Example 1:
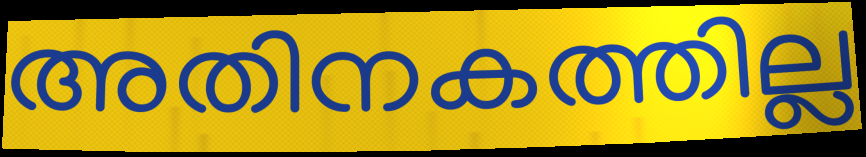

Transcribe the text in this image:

അതിനകത്തില്ല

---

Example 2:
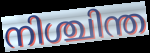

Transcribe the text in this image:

നിശ്ചിന്ത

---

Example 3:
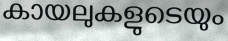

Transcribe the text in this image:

കായലുകളുടെയും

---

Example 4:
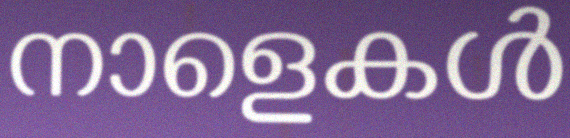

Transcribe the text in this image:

നാളെകൾ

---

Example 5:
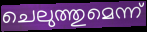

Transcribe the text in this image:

ചെലുത്തുമെന്ന്